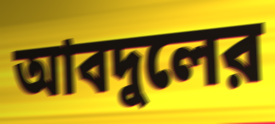
আবদুলের